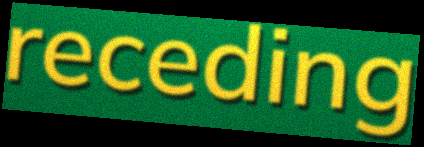
receding